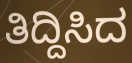
ತಿದ್ದಿಸಿದ